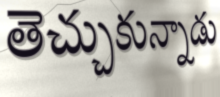
తెచ్చుకున్నాడు